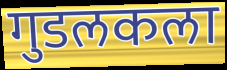
गुडलकला